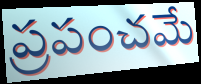
ప్రపంచమే